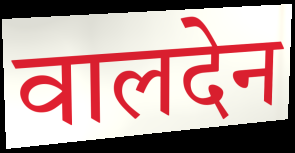
वालदेन